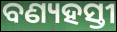
ବଣ୍ୟହସ୍ତୀ